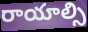
రాయాల్సి